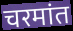
चरमांत